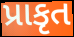
પ્રાકૃત